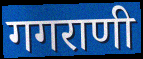
गगराणी